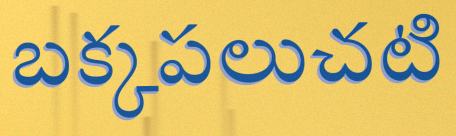
బక్కపలుచటి